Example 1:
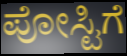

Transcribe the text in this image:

ಪೋಸ್ಟಿಗೆ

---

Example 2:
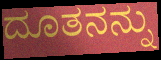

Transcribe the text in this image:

ದೂತನನ್ನು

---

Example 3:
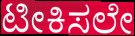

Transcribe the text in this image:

ಟೀಕಿಸಲೇ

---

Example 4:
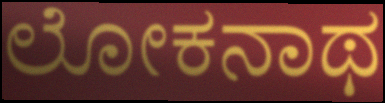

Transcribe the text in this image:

ಲೋಕನಾಥ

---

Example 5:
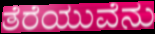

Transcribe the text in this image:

ತೆರೆಯುವೆನು